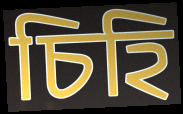
চিহি